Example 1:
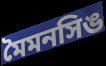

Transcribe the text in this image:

মৈমনসিঙ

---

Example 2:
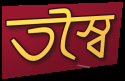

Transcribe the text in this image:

তস্বৈ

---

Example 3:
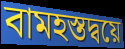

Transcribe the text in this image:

বামহস্তদ্বয়ে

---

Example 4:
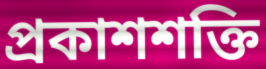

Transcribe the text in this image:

প্রকাশশক্তি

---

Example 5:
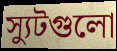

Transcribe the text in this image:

স্যুটগুলো